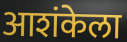
आशंकेला